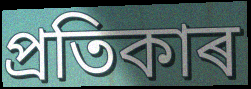
প্ৰতিকাৰ